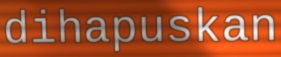
dihapuskan